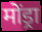
मोंड्रा